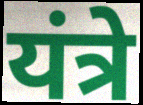
यंत्रे